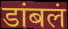
डांबलं